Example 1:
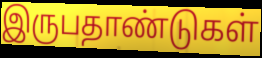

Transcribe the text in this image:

இருபதாண்டுகள்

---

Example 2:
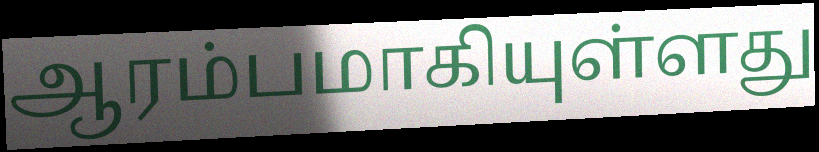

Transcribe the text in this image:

ஆரம்பமாகியுள்ளது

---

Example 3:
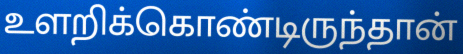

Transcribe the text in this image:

உளறிக்கொண்டிருந்தான்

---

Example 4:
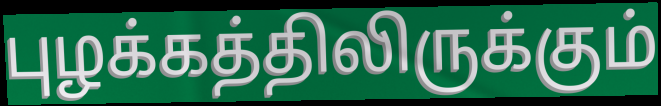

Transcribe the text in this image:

புழக்கத்திலிருக்கும்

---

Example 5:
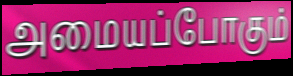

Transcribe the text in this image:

அமையப்போகும்